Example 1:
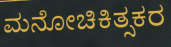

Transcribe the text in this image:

ಮನೋಚಿಕಿತ್ಸಕರ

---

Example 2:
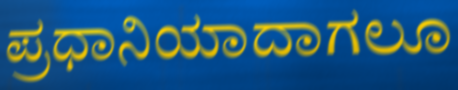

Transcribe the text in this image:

ಪ್ರಧಾನಿಯಾದಾಗಲೂ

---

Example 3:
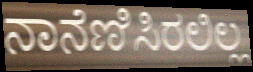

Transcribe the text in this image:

ನಾನೆಣಿಸಿರಲಿಲ್ಲ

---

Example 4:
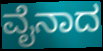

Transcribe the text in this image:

ವೈನಾದ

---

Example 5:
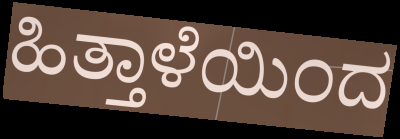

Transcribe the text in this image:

ಹಿತ್ತಾಳೆಯಿಂದ